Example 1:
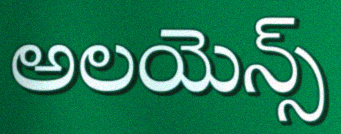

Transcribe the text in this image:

అలయెన్స్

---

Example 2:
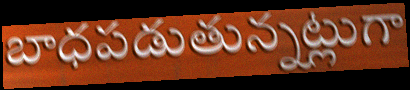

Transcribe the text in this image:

బాధపడుతున్నట్లుగా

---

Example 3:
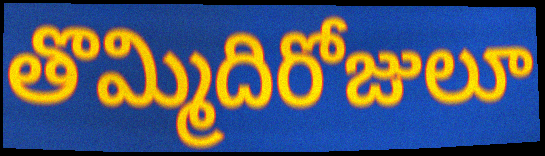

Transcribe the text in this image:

తొమ్మిదిరోజులూ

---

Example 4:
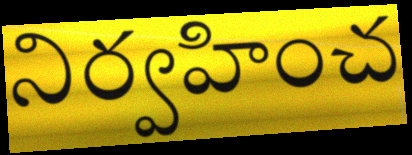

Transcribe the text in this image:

నిర్వహించ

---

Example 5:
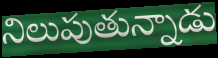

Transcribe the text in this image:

నిలుపుతున్నాడు